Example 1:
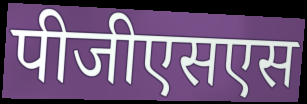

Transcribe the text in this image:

पीजीएसएस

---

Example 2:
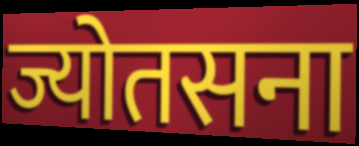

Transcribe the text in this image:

ज्योतसना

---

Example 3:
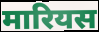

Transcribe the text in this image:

मारियस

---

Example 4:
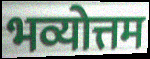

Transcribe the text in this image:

भव्योत्तम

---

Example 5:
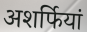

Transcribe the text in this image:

अशर्फियां